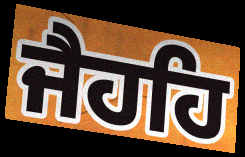
ਜੈਹਹਿ